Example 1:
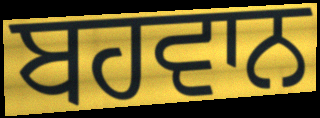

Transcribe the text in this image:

ਬਹਵਾਨ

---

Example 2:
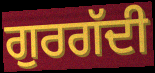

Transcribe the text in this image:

ਗੁਰਗੱਦੀ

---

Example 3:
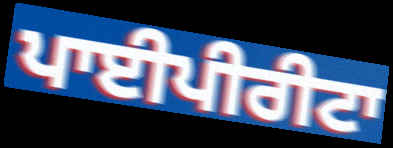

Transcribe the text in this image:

ਪਾਈਪੀਰੀਟਾ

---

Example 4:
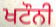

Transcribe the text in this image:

ਖਟੌਨੀ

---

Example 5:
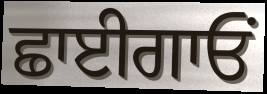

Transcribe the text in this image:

ਛਾਈਗਾਓਂ